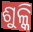
ଶୁଳ୍କି